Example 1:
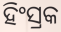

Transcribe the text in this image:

ହିଂସ୍ରକ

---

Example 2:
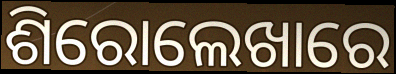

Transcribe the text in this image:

ଶିରୋଲେଖାରେ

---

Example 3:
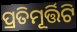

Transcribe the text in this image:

ପ୍ରତିମୂର୍ତ୍ତିଟି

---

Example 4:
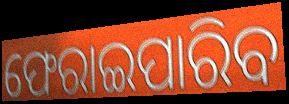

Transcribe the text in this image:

ଫେରାଇପାରିବ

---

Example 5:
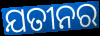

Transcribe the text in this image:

ଯତୀନର